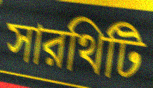
সারথিটি